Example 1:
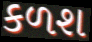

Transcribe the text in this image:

કળશ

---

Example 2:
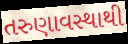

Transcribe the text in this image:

તરુણાવસ્થાથી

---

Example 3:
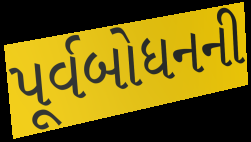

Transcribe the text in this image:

પૂર્વબોધનની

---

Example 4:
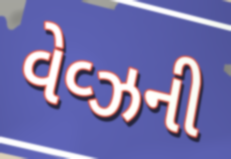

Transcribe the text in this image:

વેવ્ઝની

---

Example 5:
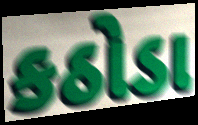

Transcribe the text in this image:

કઠોડા